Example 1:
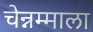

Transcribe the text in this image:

चेन्नम्माला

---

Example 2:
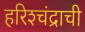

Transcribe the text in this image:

हरिश्‍चंद्राची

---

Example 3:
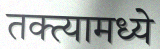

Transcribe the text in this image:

तक्त्यामध्ये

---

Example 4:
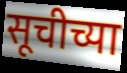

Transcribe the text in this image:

सूचीच्या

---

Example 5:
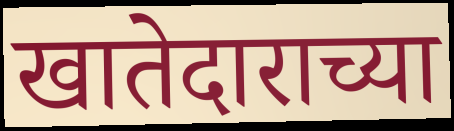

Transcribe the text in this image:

खातेदाराच्या